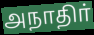
அநாதிர்